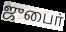
ஜுபைர்